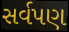
સર્વપણ